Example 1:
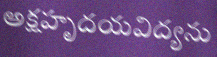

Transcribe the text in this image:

అక్షహృదయవిద్యను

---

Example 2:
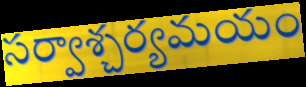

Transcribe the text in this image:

సర్వాశ్చర్యమయం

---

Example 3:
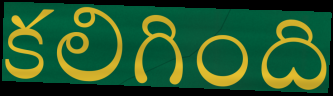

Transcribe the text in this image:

కలిగింది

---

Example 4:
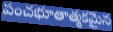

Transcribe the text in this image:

పంచభూతాత్మకమైన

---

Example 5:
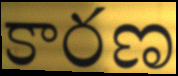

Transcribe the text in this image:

కారణ